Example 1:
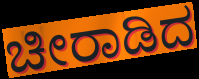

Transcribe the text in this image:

ಚೀರಾಡಿದ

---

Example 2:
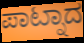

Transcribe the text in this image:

ಪಾಟ್ನಾದ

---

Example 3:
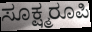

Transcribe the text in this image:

ಸೂಕ್ಷ್ಮರೂಪಿ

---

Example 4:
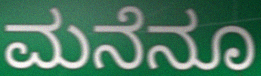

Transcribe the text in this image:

ಮನೆನೂ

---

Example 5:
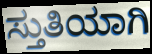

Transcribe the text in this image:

ಸ್ತುತಿಯಾಗಿ